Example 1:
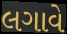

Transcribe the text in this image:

લગાવે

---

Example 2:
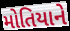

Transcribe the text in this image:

મોતિયાને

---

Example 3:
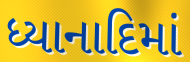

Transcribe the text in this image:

ધ્યાનાદિમાં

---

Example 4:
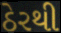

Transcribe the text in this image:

ઠેરથી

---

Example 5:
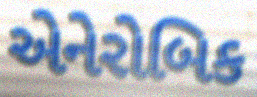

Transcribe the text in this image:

એનેરોબિક